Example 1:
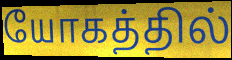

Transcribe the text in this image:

யோகத்தில்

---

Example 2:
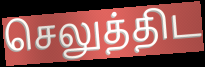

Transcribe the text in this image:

செலுத்திட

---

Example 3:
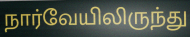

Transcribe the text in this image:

நார்வேயிலிருந்து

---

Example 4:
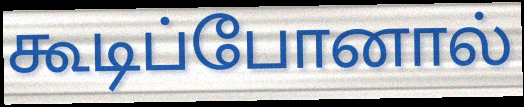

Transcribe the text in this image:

கூடிப்போனால்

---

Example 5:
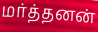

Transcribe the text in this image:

மர்த்தனன்